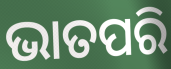
ଭାତପରି